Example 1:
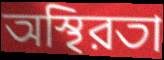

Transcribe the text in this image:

অস্থিরতা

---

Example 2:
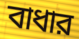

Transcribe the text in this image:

বাধার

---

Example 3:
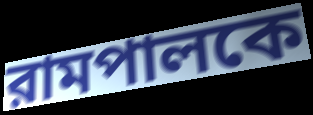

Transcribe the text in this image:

রামপালকে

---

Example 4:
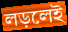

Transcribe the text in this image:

লড়লেই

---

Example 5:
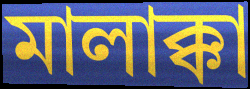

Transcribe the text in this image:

মালাক্কা